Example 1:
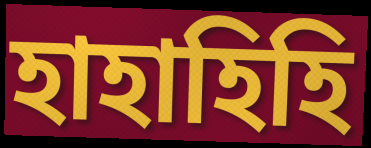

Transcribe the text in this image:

হাহাহিহি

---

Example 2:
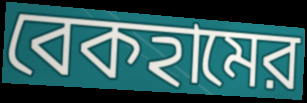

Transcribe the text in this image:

বেকহামের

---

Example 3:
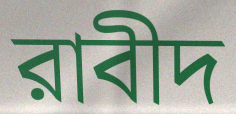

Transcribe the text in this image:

রাবীদ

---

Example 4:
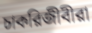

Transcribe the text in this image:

চাকরিজীবীরা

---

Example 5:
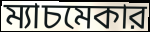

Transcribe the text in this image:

ম্যাচমেকার